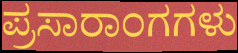
ಪ್ರಸಾರಾಂಗಗಳು